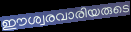
ഈശ്വരവാരിയരുടെ